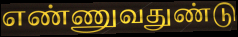
எண்ணுவதுண்டு